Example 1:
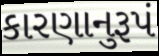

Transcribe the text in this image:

કારણાનુરૂપં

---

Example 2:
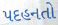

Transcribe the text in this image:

પદહનતો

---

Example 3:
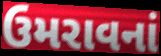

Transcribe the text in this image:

ઉમરાવનાં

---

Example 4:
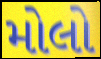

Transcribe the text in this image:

મોલો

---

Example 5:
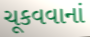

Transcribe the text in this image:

ચૂકવવાનાં